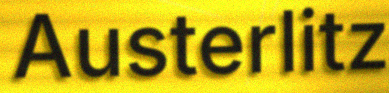
Austerlitz